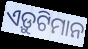
ଏଡ଼ୁଟିମାନ